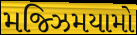
મજ્ઝિમયામો